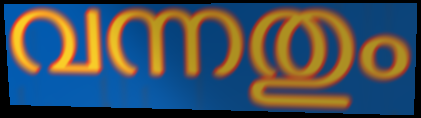
വന്നതും